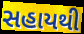
સહાયથી